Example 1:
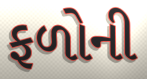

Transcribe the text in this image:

ફળોની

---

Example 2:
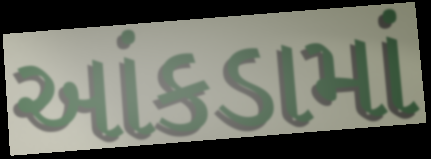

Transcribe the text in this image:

આંકડામાં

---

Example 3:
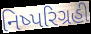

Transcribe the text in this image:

નિષ્પરિગ્રહી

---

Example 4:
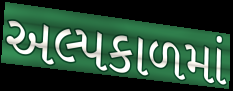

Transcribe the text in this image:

અલ્પકાળમાં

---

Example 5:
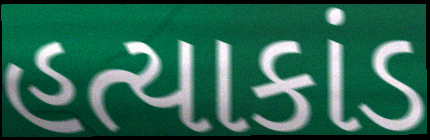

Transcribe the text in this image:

હત્યાકાંડ